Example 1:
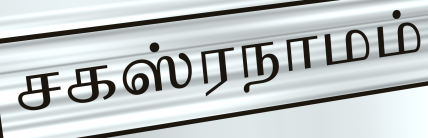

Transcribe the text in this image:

சகஸ்ரநாமம்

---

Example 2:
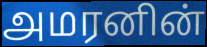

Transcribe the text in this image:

அமரனின்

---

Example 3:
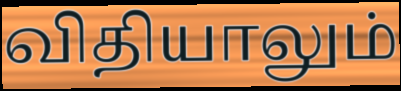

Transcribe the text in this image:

விதியாலும்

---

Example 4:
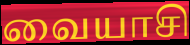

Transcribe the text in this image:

வையாசி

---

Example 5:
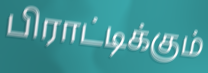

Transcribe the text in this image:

பிராட்டிக்கும்